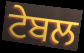
ਟੇਬਲ